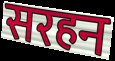
सरहन